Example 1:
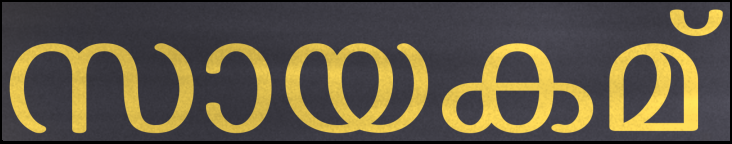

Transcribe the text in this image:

സായകമ്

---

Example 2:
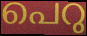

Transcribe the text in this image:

പെറു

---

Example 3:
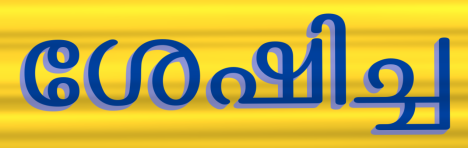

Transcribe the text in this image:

ശേഷിച്ച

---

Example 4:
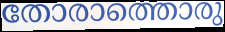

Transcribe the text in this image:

തോരാത്തൊരു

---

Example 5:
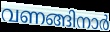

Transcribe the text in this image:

വണങ്ങിനാർ